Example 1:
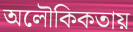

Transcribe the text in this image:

অলৌকিকতায়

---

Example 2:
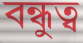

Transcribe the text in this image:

বন্ধুত্ব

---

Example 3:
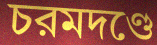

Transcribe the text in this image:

চরমদণ্ডে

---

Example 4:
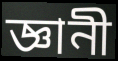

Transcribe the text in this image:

জ্ঞানী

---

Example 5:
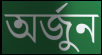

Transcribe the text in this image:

অর্জুন